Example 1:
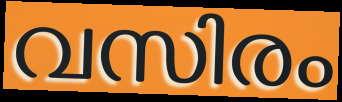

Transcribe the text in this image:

വസിരം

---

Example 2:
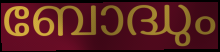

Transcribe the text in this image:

ബോദ്ധും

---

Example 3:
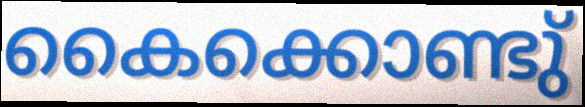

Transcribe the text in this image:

കൈക്കൊണ്ടു്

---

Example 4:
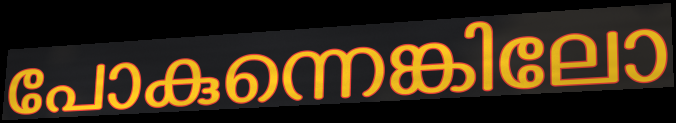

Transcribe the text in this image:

പോകുന്നെങ്കിലോ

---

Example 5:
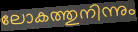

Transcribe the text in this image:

ലോകത്തുനിന്നും